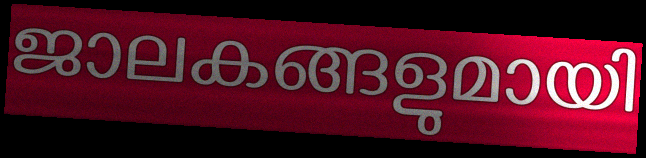
ജാലകങ്ങളുമായി